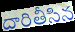
దారితీసిన